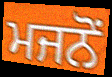
ਮਜਨੋਂ